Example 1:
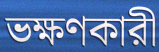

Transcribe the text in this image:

ভক্ষণকারী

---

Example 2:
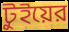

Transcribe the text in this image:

টুইয়ের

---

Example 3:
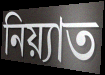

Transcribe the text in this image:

নিয়্যাত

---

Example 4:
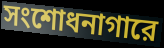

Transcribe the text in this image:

সংশোধনাগারে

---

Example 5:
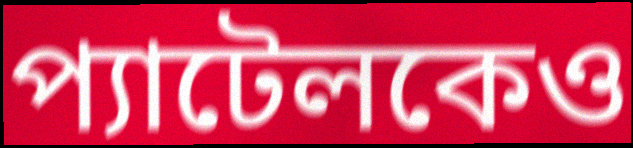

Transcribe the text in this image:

প্যাটেলকেও